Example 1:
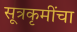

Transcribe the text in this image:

सूत्रकृमींचा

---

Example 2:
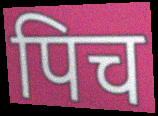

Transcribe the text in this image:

पिच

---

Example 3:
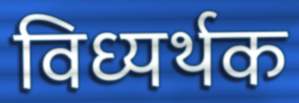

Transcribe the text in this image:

विध्यर्थक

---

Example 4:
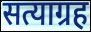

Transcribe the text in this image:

सत्याग्रह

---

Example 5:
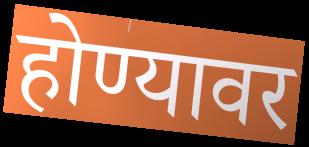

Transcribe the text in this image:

होण्यावर